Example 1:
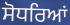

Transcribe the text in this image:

ਸੋਧਰਿਆਂ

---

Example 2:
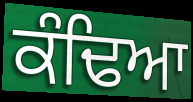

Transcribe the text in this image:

ਕੰਢਿਆ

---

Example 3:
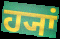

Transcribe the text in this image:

ਹ੍ਯਾਂ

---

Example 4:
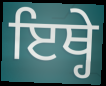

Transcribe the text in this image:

ਇਥ੍ਹੇ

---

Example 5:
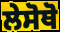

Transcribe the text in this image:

ਲੇਸੋਥੋ